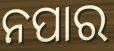
ନପାର